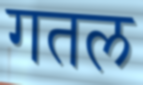
गतल